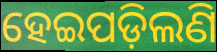
ହେଇପଡ଼ିଲଣି